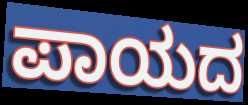
ಪಾಯದ